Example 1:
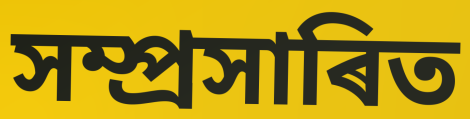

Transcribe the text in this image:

সম্প্ৰসাৰিত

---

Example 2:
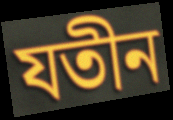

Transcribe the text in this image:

যতীন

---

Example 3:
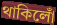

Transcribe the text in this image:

থাকিলোঁ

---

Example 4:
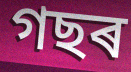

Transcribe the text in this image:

গছৰ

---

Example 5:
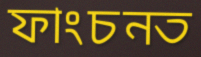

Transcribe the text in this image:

ফাংচনত